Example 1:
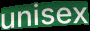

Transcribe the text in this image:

unisex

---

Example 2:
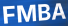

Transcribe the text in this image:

FMBA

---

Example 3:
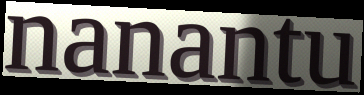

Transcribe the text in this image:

nanantu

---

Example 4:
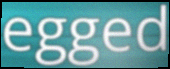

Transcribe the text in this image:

egged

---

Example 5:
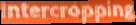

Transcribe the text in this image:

Intercropping